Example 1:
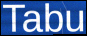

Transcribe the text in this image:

Tabu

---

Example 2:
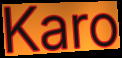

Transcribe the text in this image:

Karo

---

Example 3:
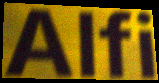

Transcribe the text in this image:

Alfi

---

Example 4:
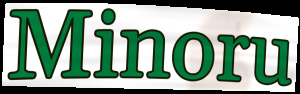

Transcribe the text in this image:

Minoru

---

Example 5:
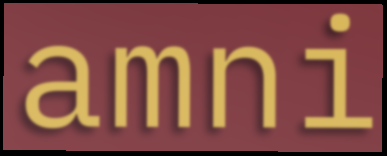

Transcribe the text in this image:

amni